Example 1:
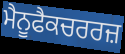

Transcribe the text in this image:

ਮੈਨੂਫੈਕਚਰਰਜ਼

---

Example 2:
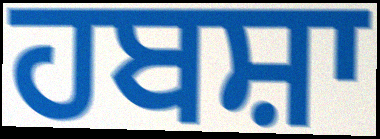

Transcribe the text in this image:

ਹਬਸ਼ਾ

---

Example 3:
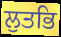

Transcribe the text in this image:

ਲੁਤਭਿ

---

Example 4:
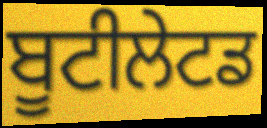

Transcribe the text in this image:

ਬੂਟੀਲੇਟਡ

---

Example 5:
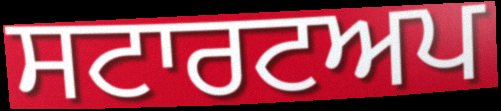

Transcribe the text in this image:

ਸਟਾਰਟਅਪ